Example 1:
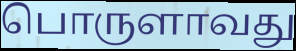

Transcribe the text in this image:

பொருளாவது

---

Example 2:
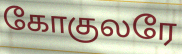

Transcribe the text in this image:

கோகுலரே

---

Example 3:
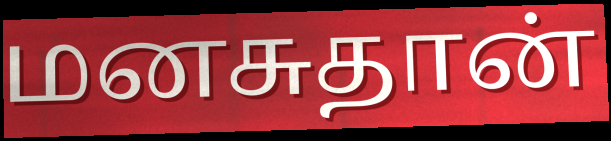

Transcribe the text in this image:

மனசுதான்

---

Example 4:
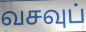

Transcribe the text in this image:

வசவுப்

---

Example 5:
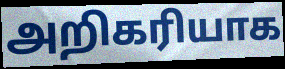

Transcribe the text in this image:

அறிகரியாக